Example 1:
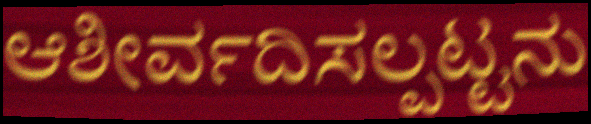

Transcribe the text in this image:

ಆಶೀರ್ವದಿಸಲ್ಪಟ್ಟನು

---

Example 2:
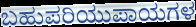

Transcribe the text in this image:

ಬಹುಪರಿಯುಪಾಯಗಳ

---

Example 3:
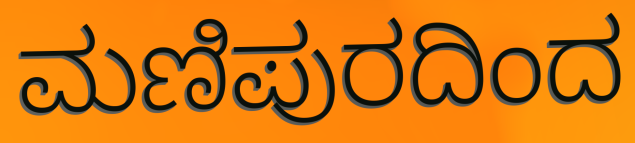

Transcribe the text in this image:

ಮಣಿಪುರದಿಂದ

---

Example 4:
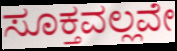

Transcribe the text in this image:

ಸೂಕ್ತವಲ್ಲವೇ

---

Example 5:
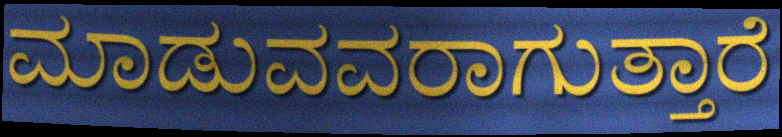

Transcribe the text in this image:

ಮಾಡುವವರಾಗುತ್ತಾರೆ